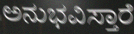
ಅನುಭವಿಸ್ತಾರೆ